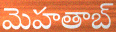
మెహతాబ్